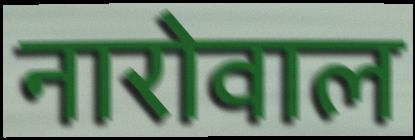
नारोवाल